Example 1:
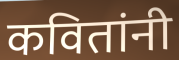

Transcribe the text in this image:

कवितांनी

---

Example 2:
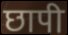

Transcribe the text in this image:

छापी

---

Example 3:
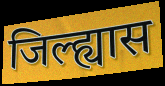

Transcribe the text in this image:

जिल्ह्यास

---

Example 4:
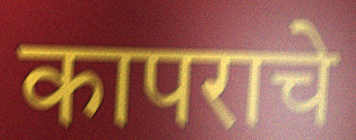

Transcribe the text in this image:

कापराचे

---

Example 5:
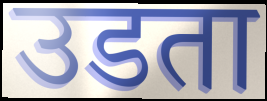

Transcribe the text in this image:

उडता